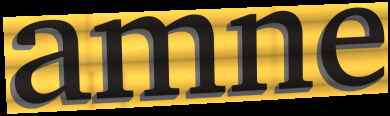
amne